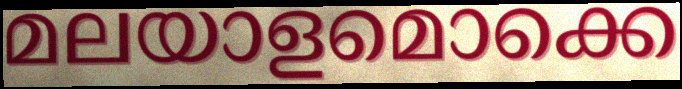
മലയാളമൊക്കെ